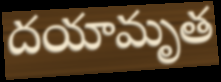
దయామృత